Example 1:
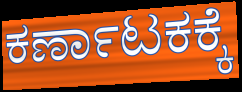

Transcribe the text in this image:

ಕರ್ಣಾಟಕಕ್ಕೆ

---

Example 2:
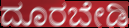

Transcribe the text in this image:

ದೂರಬೇಡಿ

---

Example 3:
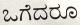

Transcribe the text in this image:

ಒಗೆದರೂ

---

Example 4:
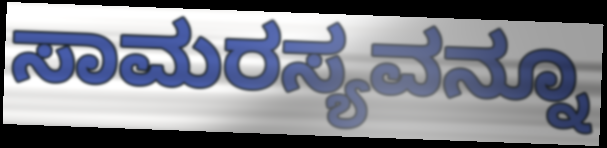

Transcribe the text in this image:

ಸಾಮರಸ್ಯವನ್ನೂ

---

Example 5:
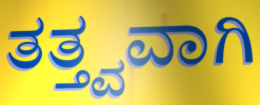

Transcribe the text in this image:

ತತ್ತ್ವವಾಗಿ